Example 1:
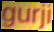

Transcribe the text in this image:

gurji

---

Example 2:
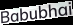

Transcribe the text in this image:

Babubhai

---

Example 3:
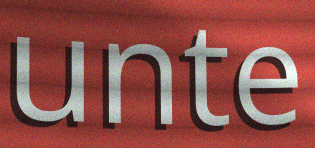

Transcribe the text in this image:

unte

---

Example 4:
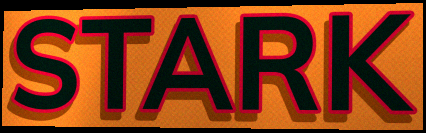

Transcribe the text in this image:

STARK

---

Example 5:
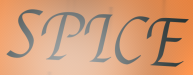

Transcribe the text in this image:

SPICE